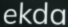
ekda